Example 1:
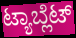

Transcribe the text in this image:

ಟ್ಯಾಬ್ಲೆಟ್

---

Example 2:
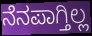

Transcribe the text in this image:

ನೆನಪಾಗ್ತಿಲ್ಲ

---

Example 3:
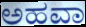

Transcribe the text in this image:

ಅಹವಾ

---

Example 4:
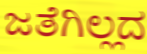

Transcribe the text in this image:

ಜತೆಗಿಲ್ಲದ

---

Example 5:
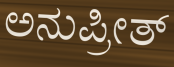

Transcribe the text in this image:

ಅನುಪ್ರೀತ್